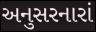
અનુસરનારાં